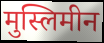
मुस्लिमीन